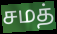
சமத்